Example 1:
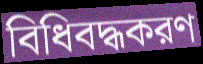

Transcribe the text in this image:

বিধিবদ্ধকরণ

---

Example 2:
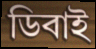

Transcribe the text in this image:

ডিবাই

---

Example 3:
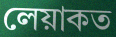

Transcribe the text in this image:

লেয়াকত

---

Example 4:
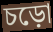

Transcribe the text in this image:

চড়ো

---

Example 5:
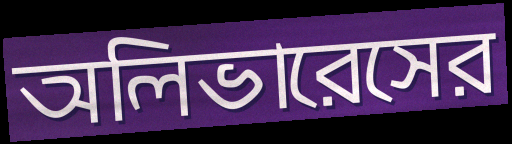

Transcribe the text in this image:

অলিভারেসের